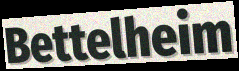
Bettelheim